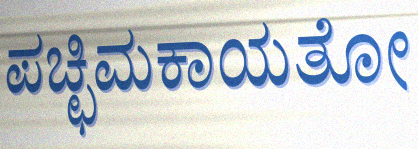
ಪಚ್ಛಿಮಕಾಯತೋ